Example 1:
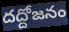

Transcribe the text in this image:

దద్దోజనం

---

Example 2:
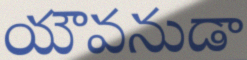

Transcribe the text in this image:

యౌవనుడా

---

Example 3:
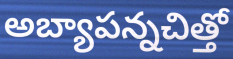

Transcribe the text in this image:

అబ్యాపన్నచిత్తో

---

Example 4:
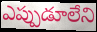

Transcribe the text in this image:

ఎప్పుడూలేని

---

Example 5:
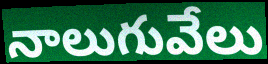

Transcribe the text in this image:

నాలుగువేలు